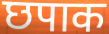
छपाक